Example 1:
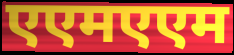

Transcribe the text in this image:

एएमएएम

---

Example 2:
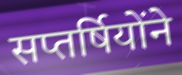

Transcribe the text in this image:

सप्तर्षियोंने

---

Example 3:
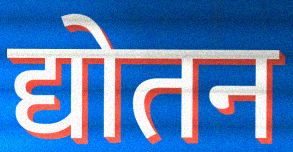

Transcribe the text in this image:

द्योतन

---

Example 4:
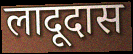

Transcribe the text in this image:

लादूदास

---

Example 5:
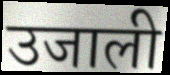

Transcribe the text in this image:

उजाली